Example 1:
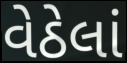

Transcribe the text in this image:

વેઠેલાં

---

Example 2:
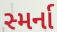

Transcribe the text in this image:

સ્મર્ના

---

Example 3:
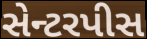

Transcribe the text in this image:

સેન્ટરપીસ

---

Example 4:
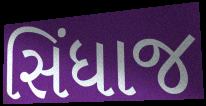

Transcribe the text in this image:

સિંધાજ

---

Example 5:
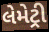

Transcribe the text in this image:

લેમેટ્રી